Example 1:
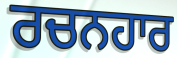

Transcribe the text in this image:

ਰਚਨਹਾਰ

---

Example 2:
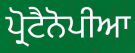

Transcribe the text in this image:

ਪ੍ਰੋਟੈਨੋਪੀਆ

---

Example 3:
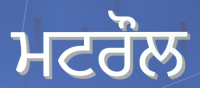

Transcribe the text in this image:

ਮਟਰੌਲ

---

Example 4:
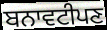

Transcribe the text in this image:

ਬਨਾਵਟੀਪਣ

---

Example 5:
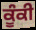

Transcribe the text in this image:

ਕੂੰਕੀ